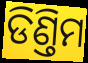
ଡିଣ୍ତିମ